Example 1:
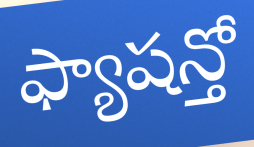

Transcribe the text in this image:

ఫ్యాషన్తో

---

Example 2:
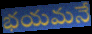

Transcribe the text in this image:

భయమనే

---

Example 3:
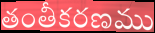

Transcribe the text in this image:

తంతీకరణము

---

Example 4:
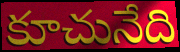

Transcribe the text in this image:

కూచునేది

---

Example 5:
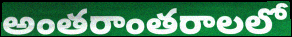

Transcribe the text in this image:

అంతరాంతరాలలో